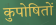
कुपोषितों